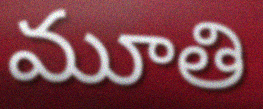
మూతి